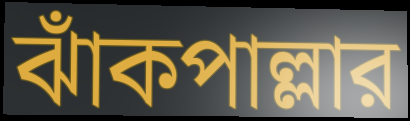
ঝাঁকপাল্লার